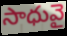
సాధువై